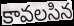
కావలసిన